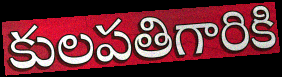
కులపతిగారికి